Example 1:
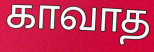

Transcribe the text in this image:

காவாத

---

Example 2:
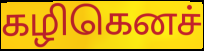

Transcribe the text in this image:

கழிகெனச்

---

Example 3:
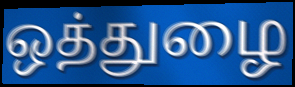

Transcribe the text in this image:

ஒத்துழை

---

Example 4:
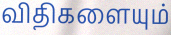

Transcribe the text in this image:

விதிகளையும்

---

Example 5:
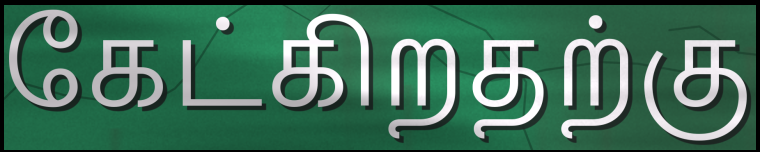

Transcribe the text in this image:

கேட்கிறதற்கு